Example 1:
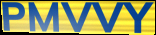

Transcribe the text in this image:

PMVVY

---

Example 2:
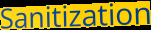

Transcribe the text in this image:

Sanitization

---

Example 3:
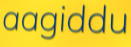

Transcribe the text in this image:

aagiddu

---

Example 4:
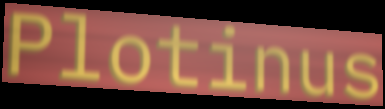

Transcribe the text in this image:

Plotinus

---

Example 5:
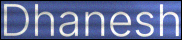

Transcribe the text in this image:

Dhanesh